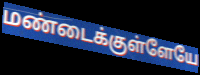
மண்டைக்குள்ளேயே